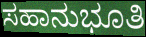
ಸಹಾನುಭೂತಿ